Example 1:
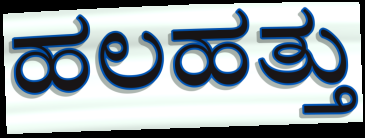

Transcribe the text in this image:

ಹಲಹತ್ತು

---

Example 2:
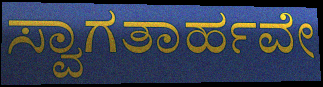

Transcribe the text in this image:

ಸ್ವಾಗತಾರ್ಹವೇ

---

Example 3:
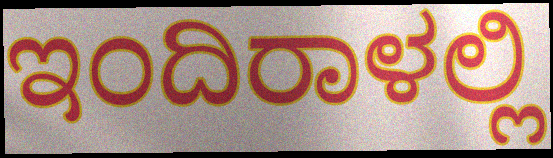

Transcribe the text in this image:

ಇಂದಿರಾಳಲ್ಲಿ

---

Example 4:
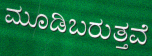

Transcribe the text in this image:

ಮೂಡಿಬರುತ್ತವೆ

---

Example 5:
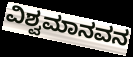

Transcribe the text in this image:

ವಿಶ್ವಮಾನವನ